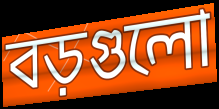
বড়গুলো